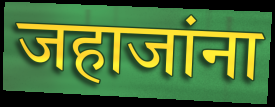
जहाजांना